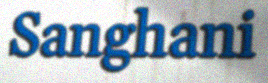
Sanghani